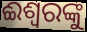
ଈଶ୍ଵରଙ୍କୁ